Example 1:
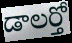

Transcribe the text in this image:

డాలర్తో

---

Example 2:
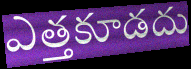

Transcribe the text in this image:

ఎత్తకూడదు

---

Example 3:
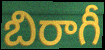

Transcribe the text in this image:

బిరాగీ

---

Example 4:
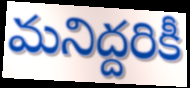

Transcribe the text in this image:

మనిద్దరికీ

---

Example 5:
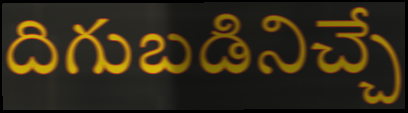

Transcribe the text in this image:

దిగుబడినిచ్చే